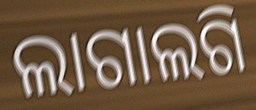
ଲାଗାଲଗି